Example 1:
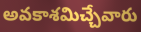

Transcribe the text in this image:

అవకాశమిచ్చేవారు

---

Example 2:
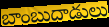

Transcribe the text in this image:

బాంబుదాడులు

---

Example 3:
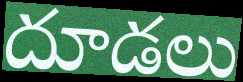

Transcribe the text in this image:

దూడలు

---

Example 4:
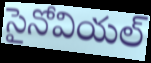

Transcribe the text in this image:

సైనోవియల్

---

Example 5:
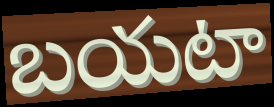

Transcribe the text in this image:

బయటా